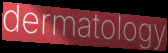
dermatology